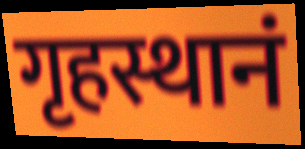
गृहस्थानं